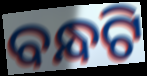
ବନ୍ଧଟି